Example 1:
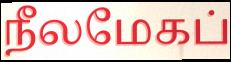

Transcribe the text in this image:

நீலமேகப்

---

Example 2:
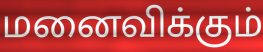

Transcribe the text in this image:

மனைவிக்கும்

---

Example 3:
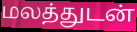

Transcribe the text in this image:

மலத்துடன்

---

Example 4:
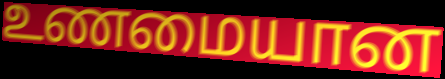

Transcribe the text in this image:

உணமையான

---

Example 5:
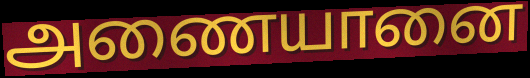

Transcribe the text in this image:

அணையானை